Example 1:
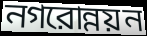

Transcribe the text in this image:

নগরোন্নয়ন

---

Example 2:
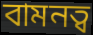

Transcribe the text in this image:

বামনত্ব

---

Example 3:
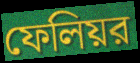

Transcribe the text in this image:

ফেলিয়র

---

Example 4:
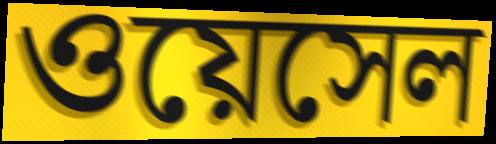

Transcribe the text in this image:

ওয়েসেল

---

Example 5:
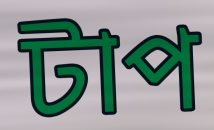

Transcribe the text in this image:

টাপ